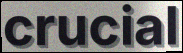
crucial